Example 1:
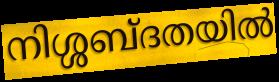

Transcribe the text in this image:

നിശ്ശബ്ദതയിൽ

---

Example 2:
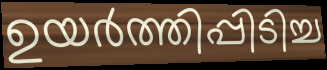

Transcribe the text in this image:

ഉയർത്തിപ്പിടിച്ച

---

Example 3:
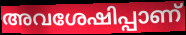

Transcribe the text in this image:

അവശേഷിപ്പാണ്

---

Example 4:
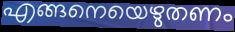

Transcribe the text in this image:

എങ്ങനെയെഴുതണം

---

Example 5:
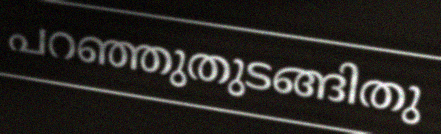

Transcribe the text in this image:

പറഞ്ഞുതുടങ്ങിതു